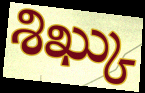
శిఖ్కు